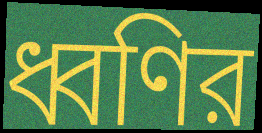
ধ্বণির